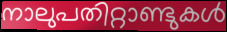
നാലുപതിറ്റാണ്ടുകൾ